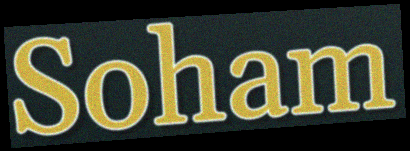
Soham